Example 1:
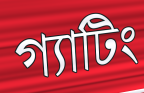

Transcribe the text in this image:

গ্যাটিং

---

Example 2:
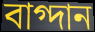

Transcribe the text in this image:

বাগ্দান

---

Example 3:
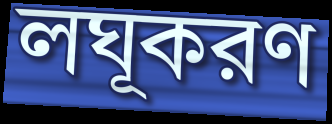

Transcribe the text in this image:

লঘূকরণ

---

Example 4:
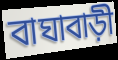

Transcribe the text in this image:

বাঘাবাড়ী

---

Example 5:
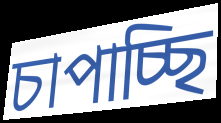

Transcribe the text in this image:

চাপাচ্ছি